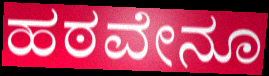
ಹಠವೇನೂ